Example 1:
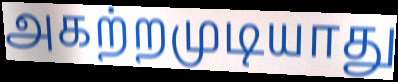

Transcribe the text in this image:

அகற்றமுடியாது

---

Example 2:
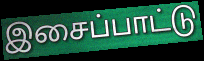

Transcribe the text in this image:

இசைப்பாட்டு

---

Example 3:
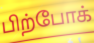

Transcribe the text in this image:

பிற்போக்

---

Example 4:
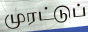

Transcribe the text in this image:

முரட்டுப்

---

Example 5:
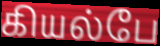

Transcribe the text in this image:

கியல்பே